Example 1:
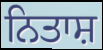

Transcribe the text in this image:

ਨਿਤਾਸ਼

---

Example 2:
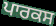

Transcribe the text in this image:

ਪਾਰਕਸ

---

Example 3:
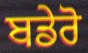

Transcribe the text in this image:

ਬਡੇਰੋ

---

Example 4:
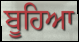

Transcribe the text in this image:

ਬੂਹਿਆ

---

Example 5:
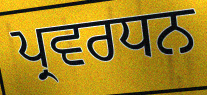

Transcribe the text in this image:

ਪ੍ਰਵਰਧਨ